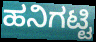
ಹನಿಗಟ್ಟಿ